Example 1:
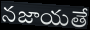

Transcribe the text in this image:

నజాయతే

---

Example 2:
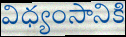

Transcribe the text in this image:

విధ్యంసానికి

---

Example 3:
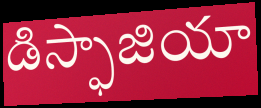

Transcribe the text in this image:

డిస్ఫాజియా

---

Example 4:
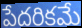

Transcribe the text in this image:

పేదరికమే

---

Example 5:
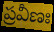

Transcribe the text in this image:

ప్రవీణః